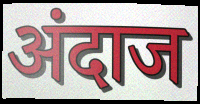
अंदाज